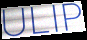
ULIP